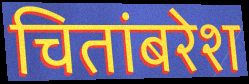
चितांबरेश